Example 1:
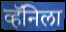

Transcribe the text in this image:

व्हॅनिला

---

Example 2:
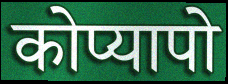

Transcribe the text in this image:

कोप्यापो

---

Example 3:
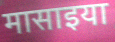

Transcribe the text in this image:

मासाइया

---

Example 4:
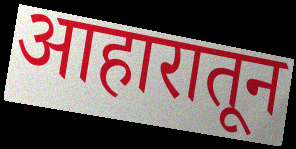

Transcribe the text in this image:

आहारातून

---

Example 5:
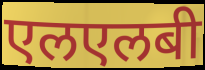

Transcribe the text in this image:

एलएलबी